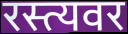
रस्त्यवर